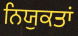
ਨਿਯੁਕਤਾਂ